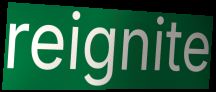
reignite